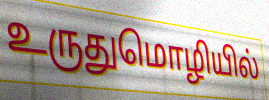
உருதுமொழியில்